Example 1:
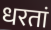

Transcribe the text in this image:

धरतां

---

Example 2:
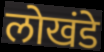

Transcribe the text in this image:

लोखंडे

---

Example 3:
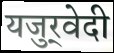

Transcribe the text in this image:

यजुर्वेदी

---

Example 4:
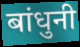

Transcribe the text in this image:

बांधुनी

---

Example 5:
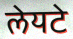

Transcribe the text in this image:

लेयटे